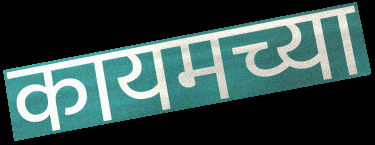
कायमच्या